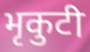
भृकुटी